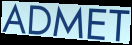
ADMET